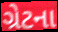
ગ્રેટના